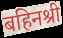
बहिनश्री